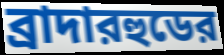
ব্রাদারহুডের